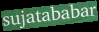
sujatababar